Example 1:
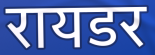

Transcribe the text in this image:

रायडर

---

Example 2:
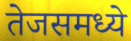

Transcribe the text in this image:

तेजसमध्ये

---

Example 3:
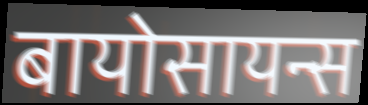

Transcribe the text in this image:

बायोसायन्स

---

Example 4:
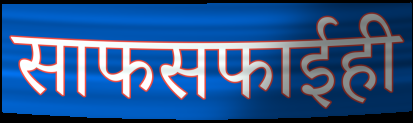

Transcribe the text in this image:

साफसफाईही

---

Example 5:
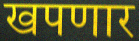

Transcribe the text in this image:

खपणार